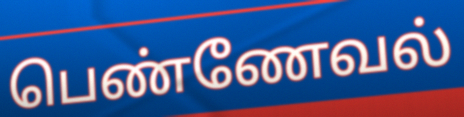
பெண்ணேவல்